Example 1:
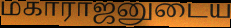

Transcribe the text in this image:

மகாராஜனுடைய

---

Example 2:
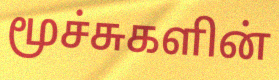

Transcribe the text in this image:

மூச்சுகளின்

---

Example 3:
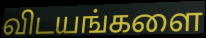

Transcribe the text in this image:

விடயங்களை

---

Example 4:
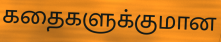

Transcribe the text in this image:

கதைகளுக்குமான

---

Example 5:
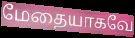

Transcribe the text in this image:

மேதையாகவே